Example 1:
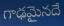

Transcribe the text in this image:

గాఢమైనదే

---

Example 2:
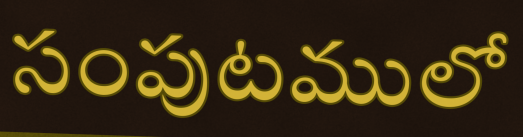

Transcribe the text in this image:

సంపుటములో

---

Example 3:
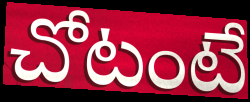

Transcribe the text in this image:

చోటంటే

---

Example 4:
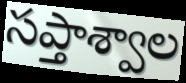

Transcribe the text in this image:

సప్తాశ్వాల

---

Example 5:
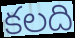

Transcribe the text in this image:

కలది